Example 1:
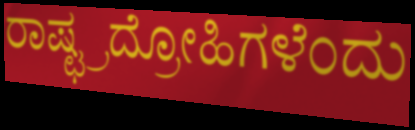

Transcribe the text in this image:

ರಾಷ್ಟ್ರದ್ರೋಹಿಗಳೆಂದು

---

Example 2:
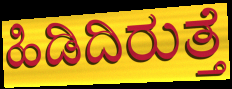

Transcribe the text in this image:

ಹಿಡಿದಿರುತ್ತೆ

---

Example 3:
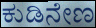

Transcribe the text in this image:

ಕುಡಿನೇಣ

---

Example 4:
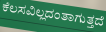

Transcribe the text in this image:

ಕೆಲಸವಿಲ್ಲದಂತಾಗುತ್ತದೆ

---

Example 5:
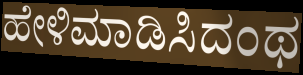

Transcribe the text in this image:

ಹೇಳಿಮಾಡಿಸಿದಂಥ